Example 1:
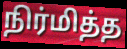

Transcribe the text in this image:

நிர்மித்த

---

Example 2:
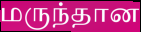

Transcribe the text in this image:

மருந்தான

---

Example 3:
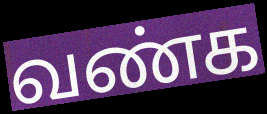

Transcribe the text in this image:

வண்க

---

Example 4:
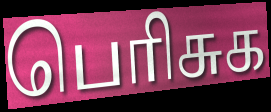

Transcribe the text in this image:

பெரிசுக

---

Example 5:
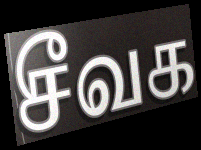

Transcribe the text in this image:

சீவக